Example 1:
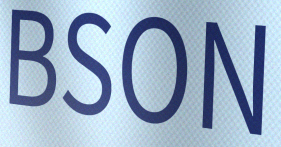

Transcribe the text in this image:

BSON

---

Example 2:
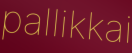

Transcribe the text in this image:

pallikkai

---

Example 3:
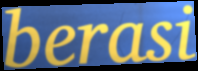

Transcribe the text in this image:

berasi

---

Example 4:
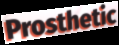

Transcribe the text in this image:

Prosthetic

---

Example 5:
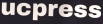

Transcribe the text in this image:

ucpress